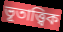
ভূতাত্ত্বিক